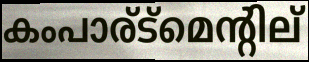
കംപാര്ട്മെന്റില്